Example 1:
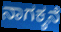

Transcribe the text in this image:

ನಾಗಕ್ಕನೆ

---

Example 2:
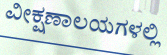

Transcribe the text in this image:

ವೀಕ್ಷಣಾಲಯಗಳಲ್ಲಿ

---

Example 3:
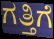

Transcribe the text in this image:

ಗತ್ತಿಗೆ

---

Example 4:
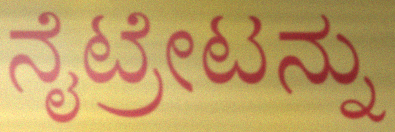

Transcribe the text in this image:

ನೈಟ್ರೇಟನ್ನು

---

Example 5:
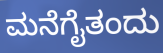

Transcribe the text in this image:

ಮನೆಗೈತಂದು